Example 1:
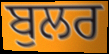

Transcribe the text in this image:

ਬੁਲਰ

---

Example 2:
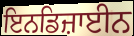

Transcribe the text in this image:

ਇਨਡਿਜ਼ਾਈਨ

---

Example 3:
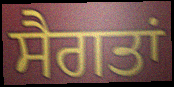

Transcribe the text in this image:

ਸੈਗਤਾਂ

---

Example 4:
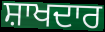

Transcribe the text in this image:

ਸ਼ਾਖਦਾਰ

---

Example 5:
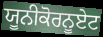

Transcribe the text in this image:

ਯੂਨੀਕੋਰਨੂਏਟ